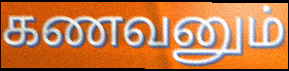
கணவனும்